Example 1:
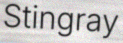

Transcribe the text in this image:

Stingray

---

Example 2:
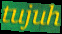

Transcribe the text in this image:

tujuh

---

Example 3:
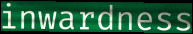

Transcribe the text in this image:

inwardness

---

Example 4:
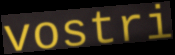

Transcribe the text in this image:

vostri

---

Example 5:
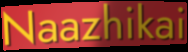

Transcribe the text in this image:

Naazhikai